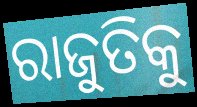
ରାଜୁତିକୁ